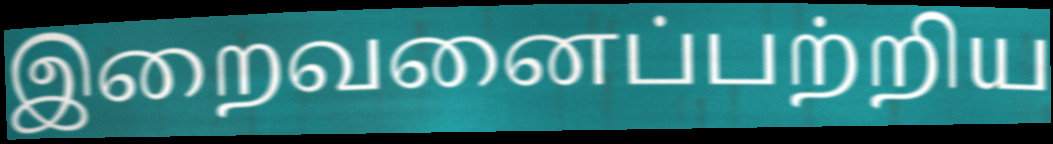
இறைவனைப்பற்றிய